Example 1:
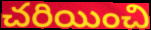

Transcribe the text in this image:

చరియించి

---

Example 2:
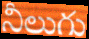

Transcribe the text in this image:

నీలుగు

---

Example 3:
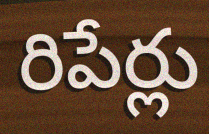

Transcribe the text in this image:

రిపేర్లు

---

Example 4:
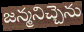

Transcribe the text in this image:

జన్మనిచ్చెను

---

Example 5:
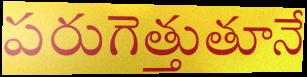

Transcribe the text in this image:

పరుగెత్తుతూనే